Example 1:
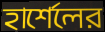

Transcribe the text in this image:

হার্শেলের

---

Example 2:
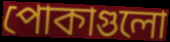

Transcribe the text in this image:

পোকাগুলো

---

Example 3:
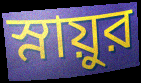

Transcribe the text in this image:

স্নায়ুর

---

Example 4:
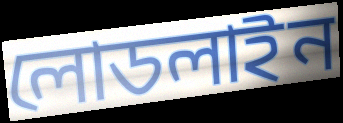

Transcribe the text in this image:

লোডলাইন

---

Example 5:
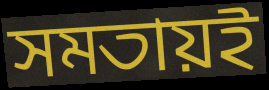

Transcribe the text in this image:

সমতায়ই